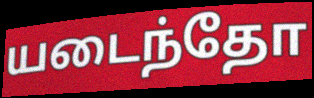
யடைந்தோ